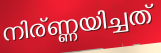
നിര്ണ്ണയിച്ചത്